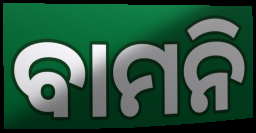
ବାମନି